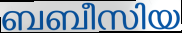
ബബീസിയ